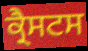
ਕ੍ਰੈਸਟਸ